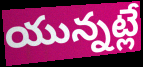
యున్నట్లే